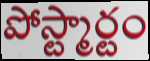
పోస్ట్మార్టం